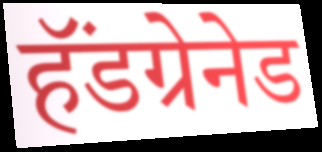
हॅंडग्रेनेड